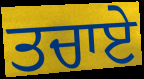
ਤਚਾਏ